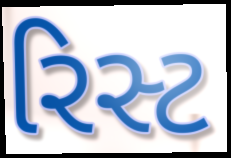
રિસ્ટ